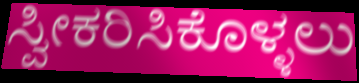
ಸ್ವೀಕರಿಸಿಕೊಳ್ಳಲು